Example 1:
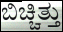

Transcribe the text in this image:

ಬಿಚ್ಚಿತ್ತು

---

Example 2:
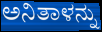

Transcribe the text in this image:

ಅನಿತಾಳನ್ನು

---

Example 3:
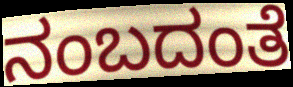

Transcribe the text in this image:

ನಂಬದಂತೆ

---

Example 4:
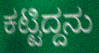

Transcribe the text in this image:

ಕಟ್ಟಿದ್ದನು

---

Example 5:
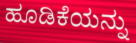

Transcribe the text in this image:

ಹೂಡಿಕೆಯನ್ನು